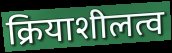
क्रियाशीलत्व